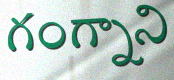
గంగ్నాని